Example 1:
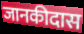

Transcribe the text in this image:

जानकीदास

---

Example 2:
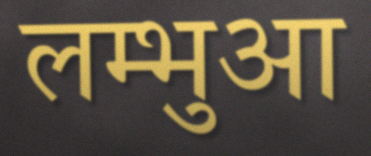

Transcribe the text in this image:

लम्भुआ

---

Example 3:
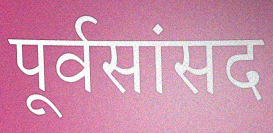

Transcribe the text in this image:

पूर्वसांसद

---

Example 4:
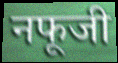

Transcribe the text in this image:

नफूजी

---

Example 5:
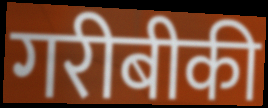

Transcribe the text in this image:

गरीबीकी